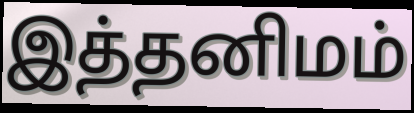
இத்தனிமம்